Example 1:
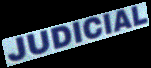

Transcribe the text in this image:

JUDICIAL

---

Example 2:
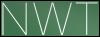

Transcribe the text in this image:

NWT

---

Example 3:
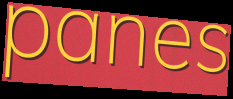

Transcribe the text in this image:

panes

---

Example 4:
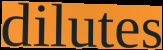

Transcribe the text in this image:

dilutes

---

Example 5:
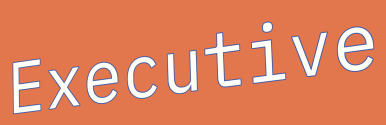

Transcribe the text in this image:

Executive